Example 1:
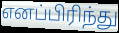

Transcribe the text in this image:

எனப்பிரிந்து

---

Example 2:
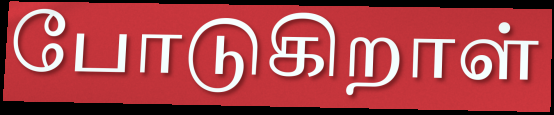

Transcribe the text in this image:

போடுகிறாள்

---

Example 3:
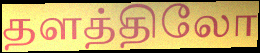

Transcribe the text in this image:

தளத்திலோ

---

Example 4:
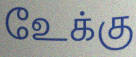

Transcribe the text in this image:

உேக்கு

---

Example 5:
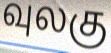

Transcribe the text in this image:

வுலகு